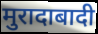
मुरादाबादी